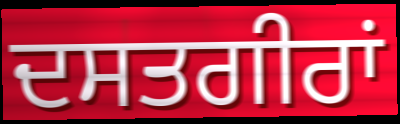
ਦਸਤਗੀਰਾਂ